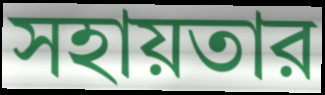
সহায়তার